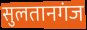
सुलतानगंज